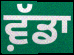
ਵ਼ੱਡਾ